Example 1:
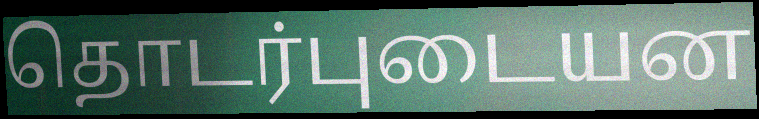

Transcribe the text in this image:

தொடர்புடையன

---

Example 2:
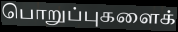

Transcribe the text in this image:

பொறுப்புகளைக்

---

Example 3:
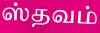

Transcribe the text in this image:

ஸ்தவம்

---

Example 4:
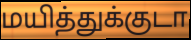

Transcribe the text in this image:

மயித்துக்குடா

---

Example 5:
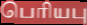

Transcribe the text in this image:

பெரியபு